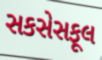
સકસેસફૂલ